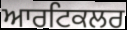
ਆਰਟਿਕਲਰ